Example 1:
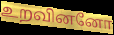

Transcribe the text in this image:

உறவினனோ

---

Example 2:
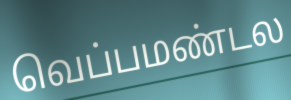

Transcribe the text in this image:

வெப்பமண்டல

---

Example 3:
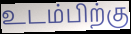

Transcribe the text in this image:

உடம்பிற்கு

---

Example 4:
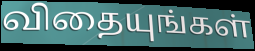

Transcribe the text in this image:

விதையுங்கள்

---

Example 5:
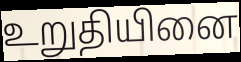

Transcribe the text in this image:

உறுதியினை